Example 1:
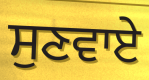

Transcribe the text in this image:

ਸੁਣਵਾਏ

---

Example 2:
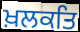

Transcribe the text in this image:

ਖ਼ਲਕਤਿ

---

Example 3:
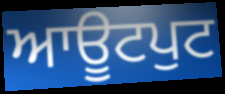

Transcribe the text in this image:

ਆਊਟਪੁਟ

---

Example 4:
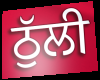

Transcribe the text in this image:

ਠੁੱਲੀ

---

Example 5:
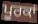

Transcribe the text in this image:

ਪੂਰਕਾਂ